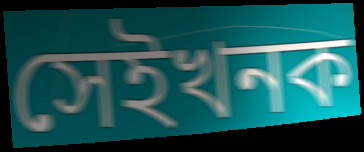
সেইখনক